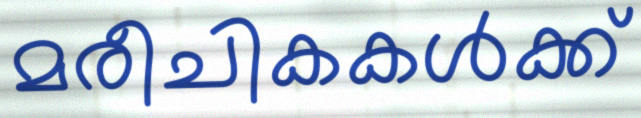
മരീചികകൾക്ക്